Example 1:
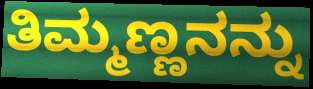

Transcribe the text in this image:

ತಿಮ್ಮಣ್ಣನನ್ನು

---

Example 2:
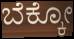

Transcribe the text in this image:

ಬೆಕ್ಕೋ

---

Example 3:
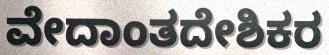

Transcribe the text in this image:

ವೇದಾಂತದೇಶಿಕರ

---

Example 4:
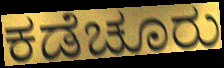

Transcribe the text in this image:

ಕಡೆಚೂರು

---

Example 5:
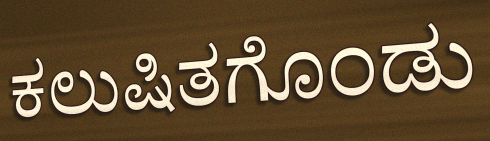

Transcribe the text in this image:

ಕಲುಷಿತಗೊಂಡು